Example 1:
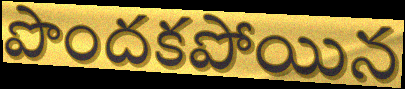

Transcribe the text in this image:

పొందకపోయిన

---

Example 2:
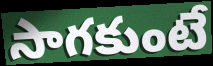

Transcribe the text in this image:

సాగకుంటే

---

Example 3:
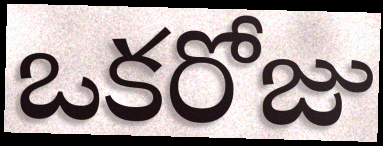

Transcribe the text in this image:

ఒకరోజు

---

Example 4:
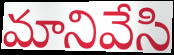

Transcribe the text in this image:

మానివేసి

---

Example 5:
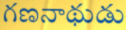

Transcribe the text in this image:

గణనాథుడు